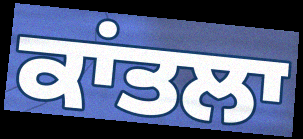
ਕਾਂਤਲਾ